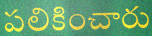
పలికించారు